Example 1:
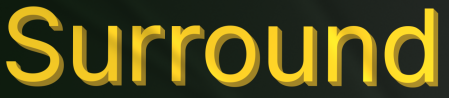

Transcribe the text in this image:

Surround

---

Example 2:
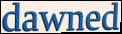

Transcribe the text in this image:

dawned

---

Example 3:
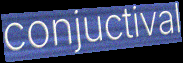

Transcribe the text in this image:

conjuctival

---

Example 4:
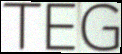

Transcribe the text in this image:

TEG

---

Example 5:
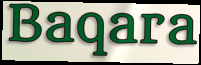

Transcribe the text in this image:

Baqara